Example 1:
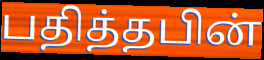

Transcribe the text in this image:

பதித்தபின்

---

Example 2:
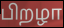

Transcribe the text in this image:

பிறழா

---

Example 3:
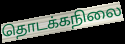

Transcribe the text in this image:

தொடக்கநிலை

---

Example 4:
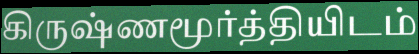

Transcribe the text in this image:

கிருஷ்ணமூர்த்தியிடம்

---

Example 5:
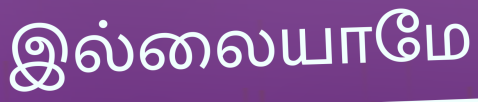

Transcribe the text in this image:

இல்லையாமே